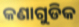
କଣାଗୁଡିକ